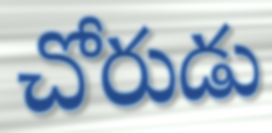
చోరుడు